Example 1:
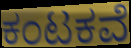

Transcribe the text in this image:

ಕಂಟಕವೆ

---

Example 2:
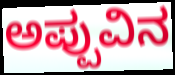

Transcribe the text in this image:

ಅಪ್ಪುವಿನ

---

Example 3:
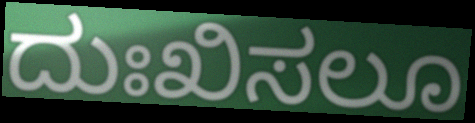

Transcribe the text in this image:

ದುಃಖಿಸಲೂ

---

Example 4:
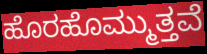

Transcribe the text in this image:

ಹೊರಹೊಮ್ಮುತ್ತವೆ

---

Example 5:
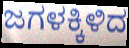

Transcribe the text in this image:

ಜಗಳಕ್ಕಿಳಿದ